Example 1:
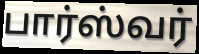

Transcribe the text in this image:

பார்ஸ்வர்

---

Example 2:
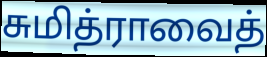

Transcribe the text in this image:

சுமித்ராவைத்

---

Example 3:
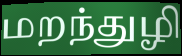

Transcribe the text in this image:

மறந்துழி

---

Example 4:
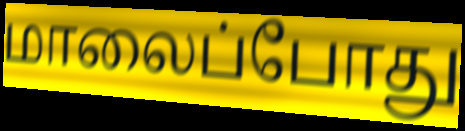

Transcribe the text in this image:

மாலைப்போது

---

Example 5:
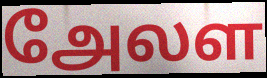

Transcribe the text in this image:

அேலள